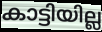
കാട്ടിയില്ല